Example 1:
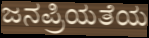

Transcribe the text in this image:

ಜನಪ್ರಿಯತೆಯ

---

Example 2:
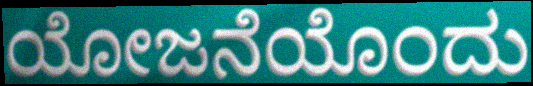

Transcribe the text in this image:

ಯೋಜನೆಯೊಂದು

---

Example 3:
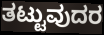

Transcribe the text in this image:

ತಟ್ಟುವುದರ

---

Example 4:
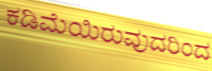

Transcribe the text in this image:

ಕಡಿಮೆಯಿರುವುದರಿಂದ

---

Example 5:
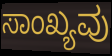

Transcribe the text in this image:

ಸಾಂಖ್ಯವು